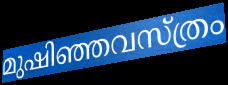
മുഷിഞ്ഞവസ്ത്രം